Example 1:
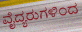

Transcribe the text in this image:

ವೈದ್ಯರುಗಳಿಂದ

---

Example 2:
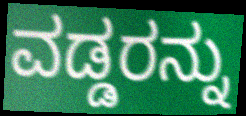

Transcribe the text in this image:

ವಡ್ಡರನ್ನು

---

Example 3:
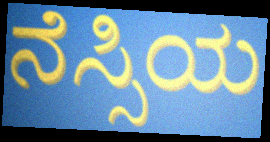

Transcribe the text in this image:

ನೆಸ್ಸಿಯ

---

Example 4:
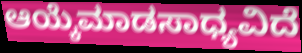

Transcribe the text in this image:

ಆಯ್ಕೆಮಾಡಸಾಧ್ಯವಿದೆ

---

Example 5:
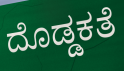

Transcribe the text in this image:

ದೊಡ್ಡಕತೆ